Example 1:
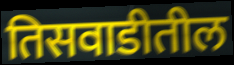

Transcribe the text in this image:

तिसवाडीतील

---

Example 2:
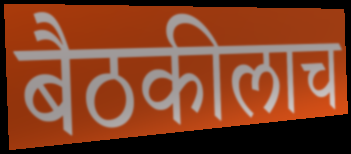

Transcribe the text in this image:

बैठकीलाच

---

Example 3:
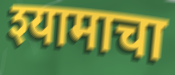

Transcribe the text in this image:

श्यामाचा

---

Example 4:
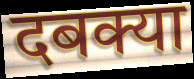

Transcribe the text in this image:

दबक्या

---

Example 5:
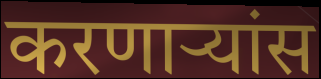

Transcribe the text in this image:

करणाऱ्यांस